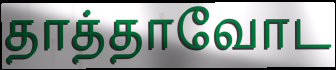
தாத்தாவோட